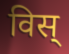
विस्